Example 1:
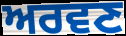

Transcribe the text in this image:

ਅਰਵਣ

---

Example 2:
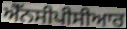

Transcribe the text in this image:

ਐੱਨਸੀਪੀਸੀਆਰ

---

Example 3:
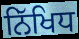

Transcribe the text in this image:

ਨਿੱਖਿਧ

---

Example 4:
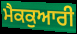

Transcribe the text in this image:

ਮੈਕਕੁਆਰੀ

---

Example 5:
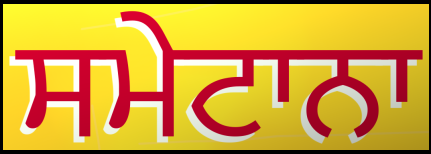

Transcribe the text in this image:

ਸਮੇਟਾਨਾ